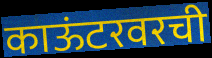
काऊंटरवरची